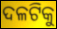
ଦଳଟିକୁ